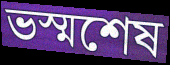
ভস্মশেষ